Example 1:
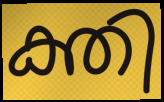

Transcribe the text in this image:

ക്തി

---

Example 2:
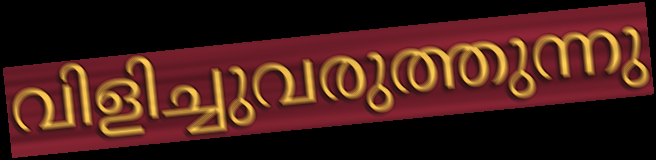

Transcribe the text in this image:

വിളിച്ചുവരുത്തുന്നു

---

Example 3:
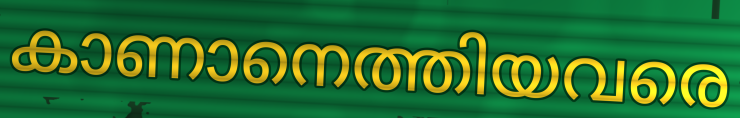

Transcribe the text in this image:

കാണാനെത്തിയവരെ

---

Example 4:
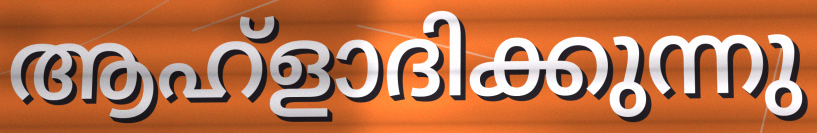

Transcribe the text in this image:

ആഹ്ളാദിക്കുന്നു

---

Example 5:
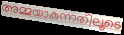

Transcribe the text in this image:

അമ്മയാകുന്നതിലൂടെ